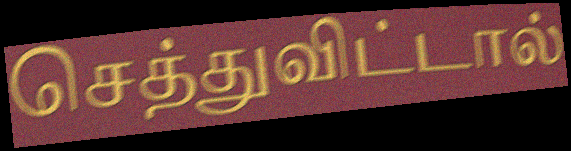
செத்துவிட்டால்